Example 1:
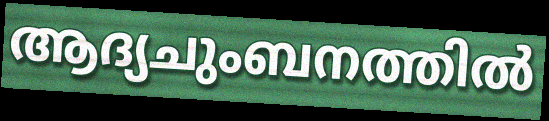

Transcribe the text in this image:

ആദ്യചുംബനത്തിൽ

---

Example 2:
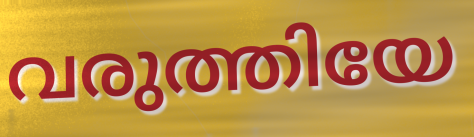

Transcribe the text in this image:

വരുത്തിയേ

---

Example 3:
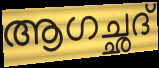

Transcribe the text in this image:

ആഗച്ഛദ്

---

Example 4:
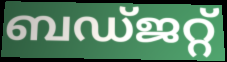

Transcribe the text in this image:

ബഡ്ജറ്റ്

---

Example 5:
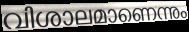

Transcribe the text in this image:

വിശാലമാണെന്നും